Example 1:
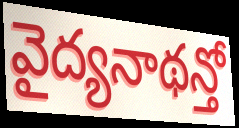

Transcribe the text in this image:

వైద్యనాథన్తో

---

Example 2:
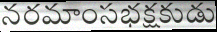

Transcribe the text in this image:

నరమాంసభక్షకుడు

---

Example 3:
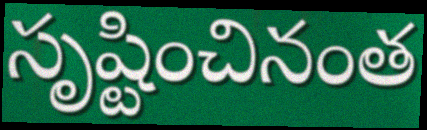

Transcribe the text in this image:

సృష్టించినంత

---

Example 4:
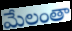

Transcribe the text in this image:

మేలంతా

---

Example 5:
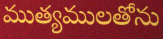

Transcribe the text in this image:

ముత్యములతోను